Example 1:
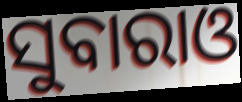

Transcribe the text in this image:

ସୁବାରାଓ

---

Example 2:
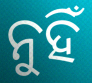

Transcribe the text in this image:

ନୁହିଁ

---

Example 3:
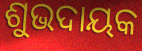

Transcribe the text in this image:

ଶୁଭଦାୟକ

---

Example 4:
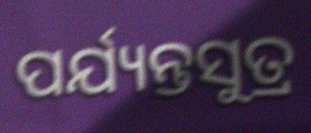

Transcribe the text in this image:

ପର୍ଯ୍ୟନ୍ତସୁତ୍ର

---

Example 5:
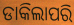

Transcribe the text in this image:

ଡାକିଲାପରି